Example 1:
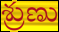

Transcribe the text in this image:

శ్రుణు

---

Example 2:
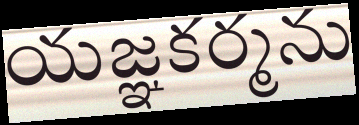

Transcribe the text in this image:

యజ్ఞకర్మను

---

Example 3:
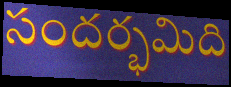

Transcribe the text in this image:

సందర్భమిది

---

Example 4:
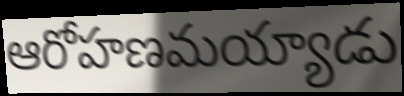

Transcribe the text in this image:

ఆరోహణమయ్యాడు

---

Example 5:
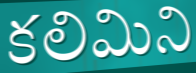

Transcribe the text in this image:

కలిమిని